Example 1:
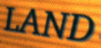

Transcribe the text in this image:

LAND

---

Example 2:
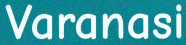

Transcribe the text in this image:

Varanasi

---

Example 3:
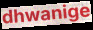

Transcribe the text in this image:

dhwanige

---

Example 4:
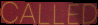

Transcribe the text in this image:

CALLED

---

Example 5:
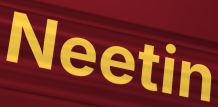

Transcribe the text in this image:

Neetin